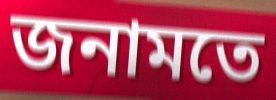
জনামতে